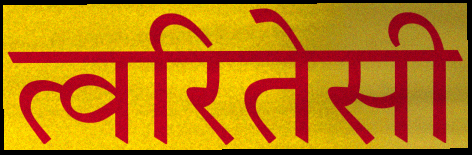
त्वरितेसी